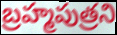
బ్రహ్మపుత్రని